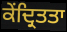
ਕੇਂਦ੍ਰਿਤਤਾ